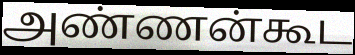
அண்ணன்கூட